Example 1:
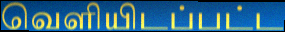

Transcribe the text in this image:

வெளியிடப்பட்ட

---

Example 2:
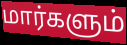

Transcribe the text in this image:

மார்களும்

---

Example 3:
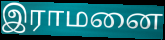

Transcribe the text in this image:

இராமனை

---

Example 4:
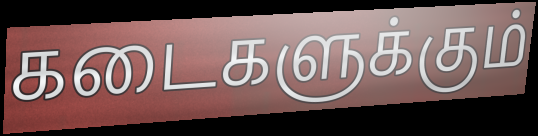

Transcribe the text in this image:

கடைகளுக்கும்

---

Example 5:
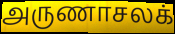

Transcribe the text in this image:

அருணாசலக்